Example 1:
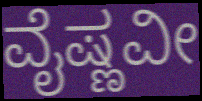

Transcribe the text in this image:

ವೈಷ್ಣವೀ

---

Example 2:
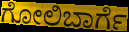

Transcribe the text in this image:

ಗೋಲಿಬಾರ್ಗೆ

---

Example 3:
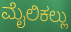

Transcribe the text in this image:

ಮೈಲಿಕಲ್ಲು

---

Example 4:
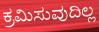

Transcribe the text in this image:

ಕ್ರಮಿಸುವುದಿಲ್ಲ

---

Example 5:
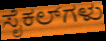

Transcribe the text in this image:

ಸೈಕಲ್‌ಗಳು